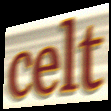
celt